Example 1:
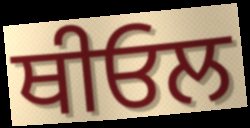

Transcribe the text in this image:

ਥੀਓਲ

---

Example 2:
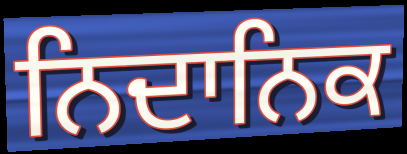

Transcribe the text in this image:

ਨਿਦਾਨਿਕ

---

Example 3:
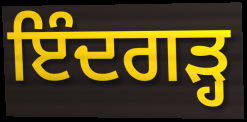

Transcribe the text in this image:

ਇੰਦਗੜ੍ਹ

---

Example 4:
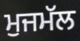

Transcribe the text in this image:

ਮੁਜਮੱਲ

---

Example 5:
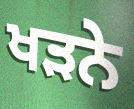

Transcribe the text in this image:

ਖੜਨੇ